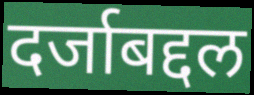
दर्जाबद्दल